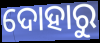
ଦୋହାରୁ